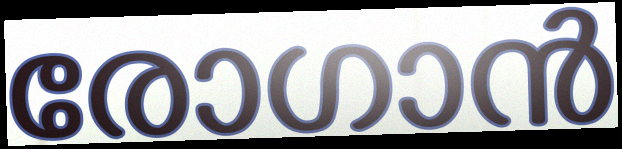
രോഗാൻ